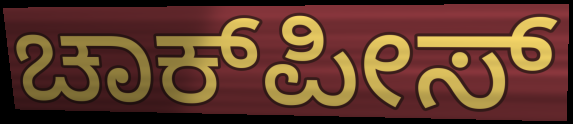
ಚಾಕ್‌ಪೀಸ್